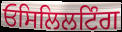
ਓਸਿਲਿਲਟਿੰਗ